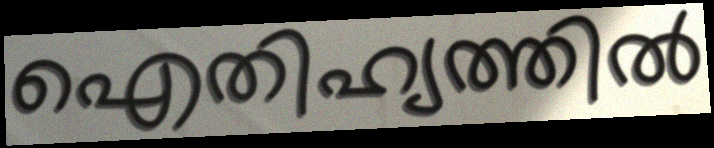
ഐതിഹ്യത്തിൽ